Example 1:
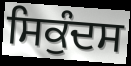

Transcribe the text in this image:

ਸਿਕੁੰਦਸ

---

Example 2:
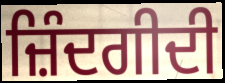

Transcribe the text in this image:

ਜ਼ਿੰਦਗੀਦੀ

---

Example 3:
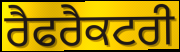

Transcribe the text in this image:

ਰੈਫਰੈਕਟਰੀ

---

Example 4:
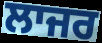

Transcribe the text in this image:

ਲਾਜਰ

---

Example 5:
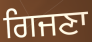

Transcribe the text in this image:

ਗਿਜਣਾ